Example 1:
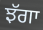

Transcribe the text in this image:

ਝੱਗਾ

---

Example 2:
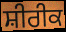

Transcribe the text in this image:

ਸ਼ੀਰੀਕ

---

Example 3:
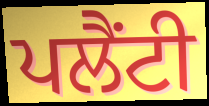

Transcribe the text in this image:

ਪਲੈਂਟੀ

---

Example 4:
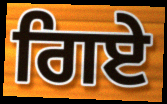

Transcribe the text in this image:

ਗਿਏ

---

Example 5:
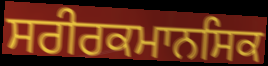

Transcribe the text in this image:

ਸਰੀਰਕਮਾਨਸਿਕ